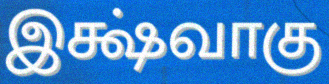
இக்ஷ்வாகு